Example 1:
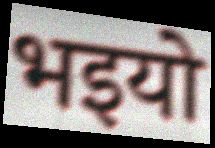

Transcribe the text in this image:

भइयो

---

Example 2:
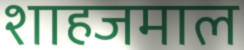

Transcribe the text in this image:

शाहजमाल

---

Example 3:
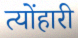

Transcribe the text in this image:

त्योंहारी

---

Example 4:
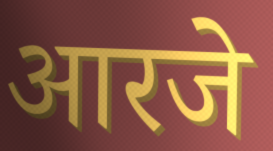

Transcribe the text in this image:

आरजे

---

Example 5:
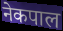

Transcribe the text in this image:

नेकपाल